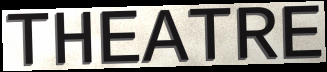
THEATRE